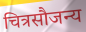
चित्रसौजन्य